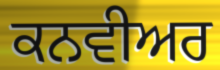
ਕਨਵੀਅਰ